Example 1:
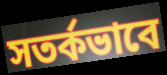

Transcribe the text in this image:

সতর্কভাবে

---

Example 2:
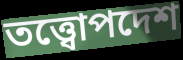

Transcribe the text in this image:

তত্ত্বোপদেশ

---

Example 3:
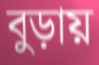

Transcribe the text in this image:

বুড়ায়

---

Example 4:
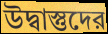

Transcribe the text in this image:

উদ্বাস্তুদের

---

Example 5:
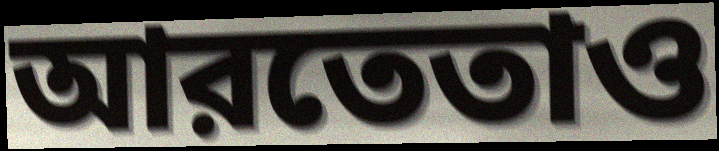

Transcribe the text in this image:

আরতেতাও